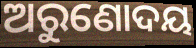
ଅରୁଣୋଦୟ